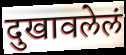
दुखावलेलं